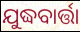
ଯୁଦ୍ଧବାର୍ତ୍ତା